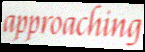
approaching